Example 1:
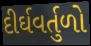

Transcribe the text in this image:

દીર્ઘવર્તુળો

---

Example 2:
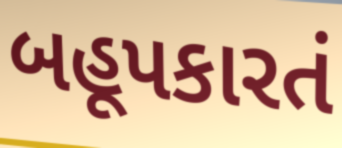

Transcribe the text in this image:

બહૂપકારતં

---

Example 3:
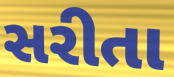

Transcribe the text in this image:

સરીતા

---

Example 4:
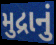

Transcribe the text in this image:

મુદ્રાનું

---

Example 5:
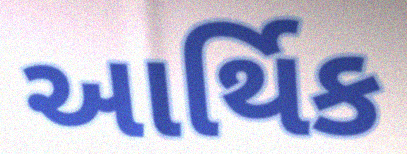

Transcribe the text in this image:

આર્થિક